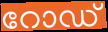
റോഡ്